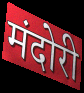
मंदोरी